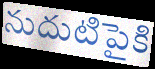
నుదుటిపైకి